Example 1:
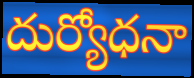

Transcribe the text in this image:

దుర్యోధనా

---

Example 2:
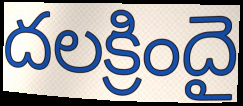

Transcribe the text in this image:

దలక్రిందై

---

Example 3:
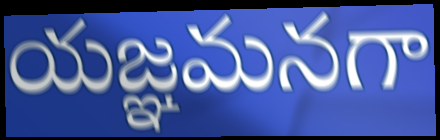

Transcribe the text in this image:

యజ్ఞమనగా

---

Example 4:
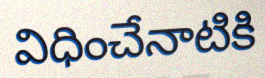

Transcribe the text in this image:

విధించేనాటికి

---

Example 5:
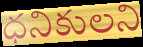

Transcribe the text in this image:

ధనికులని